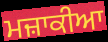
ਮਜ਼ਾਕੀਆ